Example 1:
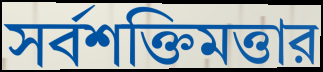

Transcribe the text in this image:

সর্বশক্তিমত্তার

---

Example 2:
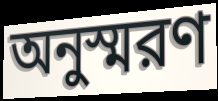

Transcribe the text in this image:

অনুস্মরণ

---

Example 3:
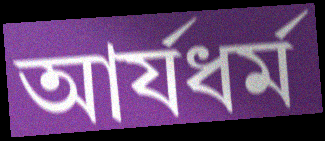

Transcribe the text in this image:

আর্যধর্ম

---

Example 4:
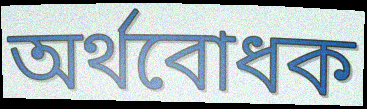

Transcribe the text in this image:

অর্থবোধক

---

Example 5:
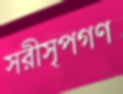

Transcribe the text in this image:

সরীসৃপগণ